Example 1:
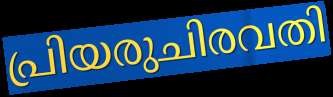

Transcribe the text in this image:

പ്രിയരുചിരവതി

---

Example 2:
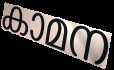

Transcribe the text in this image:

കാമന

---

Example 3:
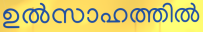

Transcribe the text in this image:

ഉൽസാഹത്തിൽ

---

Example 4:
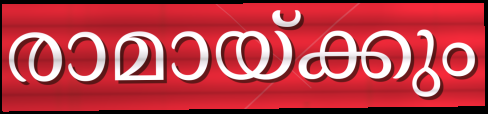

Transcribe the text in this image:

രാമായ്ക്കും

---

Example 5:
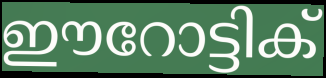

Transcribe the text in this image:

ഈറോട്ടിക്